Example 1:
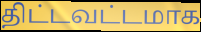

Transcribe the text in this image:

திட்டவட்டமாக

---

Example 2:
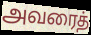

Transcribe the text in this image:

அவரைத்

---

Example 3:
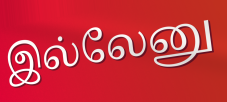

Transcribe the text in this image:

இல்லேனு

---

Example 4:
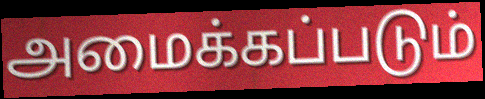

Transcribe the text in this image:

அமைக்கப்படும்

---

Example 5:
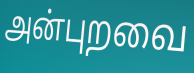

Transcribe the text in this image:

அன்புறவை